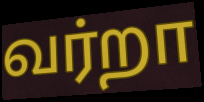
வர்றா